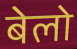
बेलो